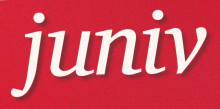
juniv